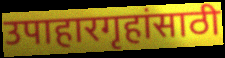
उपाहारगृहांसाठी